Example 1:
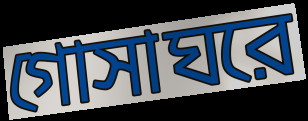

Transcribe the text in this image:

গোসাঘরে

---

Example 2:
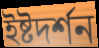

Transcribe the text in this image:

ইষ্টদর্শন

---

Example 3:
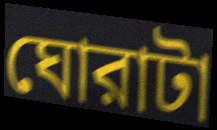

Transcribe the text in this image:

ঘোরাটা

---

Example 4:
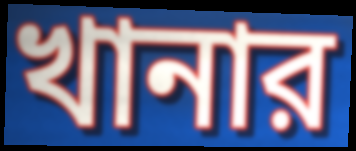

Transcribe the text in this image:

খানার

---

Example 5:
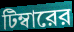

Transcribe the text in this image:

টিম্বারের